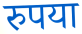
रुपया